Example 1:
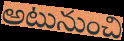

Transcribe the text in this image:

అటునుంచి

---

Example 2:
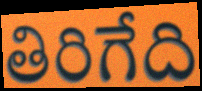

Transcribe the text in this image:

తిరిగేది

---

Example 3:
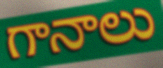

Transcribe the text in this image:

గానాలు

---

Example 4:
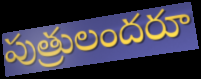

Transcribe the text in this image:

పుత్రులందరూ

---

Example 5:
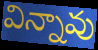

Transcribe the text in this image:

విన్నావు